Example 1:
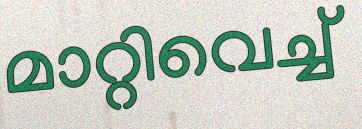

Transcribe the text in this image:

മാറ്റിവെച്ച്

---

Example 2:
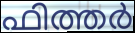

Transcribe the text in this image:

ഫിത്തർ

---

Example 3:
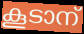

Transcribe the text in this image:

കൂടാന്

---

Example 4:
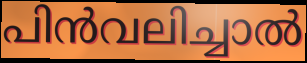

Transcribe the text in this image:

പിൻവലിച്ചാൽ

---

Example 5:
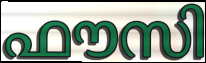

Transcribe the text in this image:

ഫൗസി